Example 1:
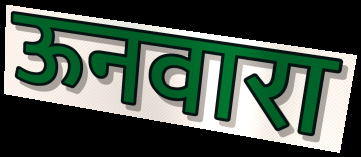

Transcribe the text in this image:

ऊनवारा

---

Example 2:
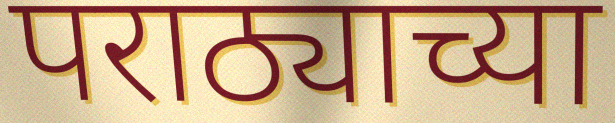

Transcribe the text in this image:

पराठ्याच्या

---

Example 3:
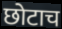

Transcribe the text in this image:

छोटाच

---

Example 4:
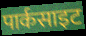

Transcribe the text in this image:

पार्कसाइट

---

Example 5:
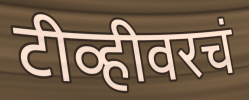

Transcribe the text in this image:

टीव्हीवरचं